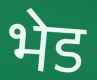
भेड